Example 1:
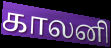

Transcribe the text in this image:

காலனி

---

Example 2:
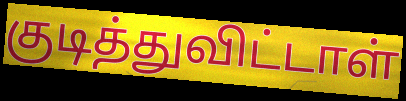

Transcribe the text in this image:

குடித்துவிட்டாள்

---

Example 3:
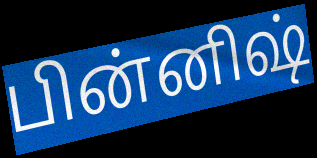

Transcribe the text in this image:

பின்னிஷ்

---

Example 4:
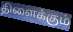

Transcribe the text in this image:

திளைக்கும்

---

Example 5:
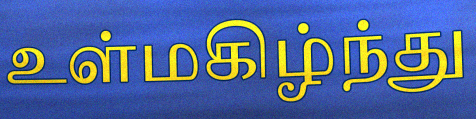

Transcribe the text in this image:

உள்மகிழ்ந்து